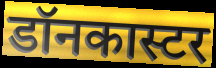
डॉनकास्टर